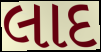
લાદ